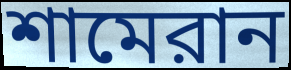
শামেরান